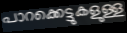
പാറക്കെട്ടുകളുള്ള